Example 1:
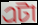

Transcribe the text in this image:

এটা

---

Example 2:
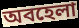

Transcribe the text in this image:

অবহেলা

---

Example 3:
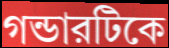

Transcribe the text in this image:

গন্ডারটিকে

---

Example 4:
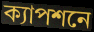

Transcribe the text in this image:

ক্যাপশনে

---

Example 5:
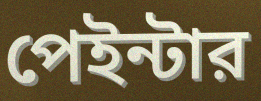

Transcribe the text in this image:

পেইন্টার